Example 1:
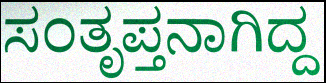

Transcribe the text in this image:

ಸಂತೃಪ್ತನಾಗಿದ್ದ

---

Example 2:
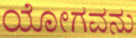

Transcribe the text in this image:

ಯೋಗವನು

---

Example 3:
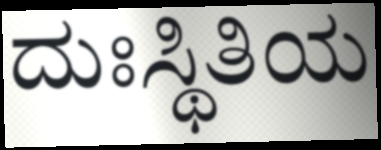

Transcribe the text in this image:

ದುಃಸ್ಥಿತಿಯ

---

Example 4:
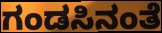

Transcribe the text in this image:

ಗಂಡಸಿನಂತೆ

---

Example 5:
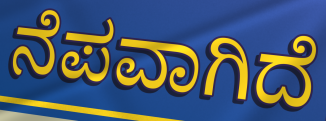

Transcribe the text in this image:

ನೆಪವಾಗಿದೆ